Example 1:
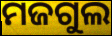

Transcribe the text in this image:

ମଜଗୁଲ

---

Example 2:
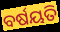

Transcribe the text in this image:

ବର୍ଷୟତି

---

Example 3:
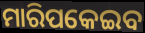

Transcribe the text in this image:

ମାରିପକେଇବ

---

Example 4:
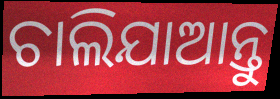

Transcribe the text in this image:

ଚାଲିଯାଆନ୍ତୁ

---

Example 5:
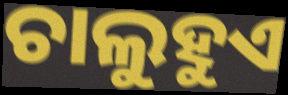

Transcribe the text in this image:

ଚାଲୁହୁଏ